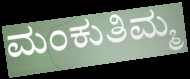
ಮಂಕುತಿಮ್ಮ